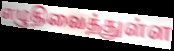
எழுதிவைத்துள்ள